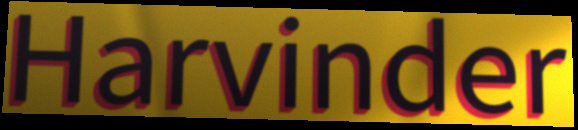
Harvinder